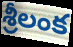
శ్రీలంక